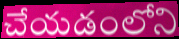
చేయడంలోని